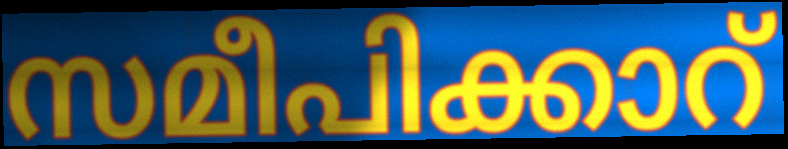
സമീപിക്കാറ്